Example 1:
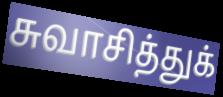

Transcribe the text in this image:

சுவாசித்துக்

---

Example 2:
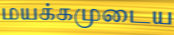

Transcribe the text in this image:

மயக்கமுடைய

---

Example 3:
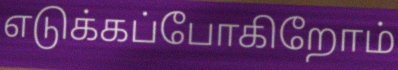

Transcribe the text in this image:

எடுக்கப்போகிறோம்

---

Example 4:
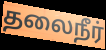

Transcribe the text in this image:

தலைநீர்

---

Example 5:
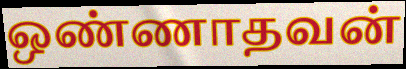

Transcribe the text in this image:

ஒண்ணாதவன்